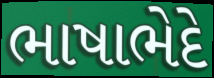
ભાષાભેદે